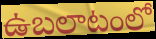
ఉబలాటంలో